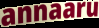
annaaru